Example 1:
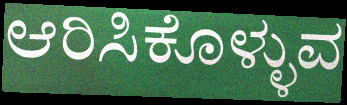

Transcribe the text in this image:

ಆರಿಸಿಕೊಳ್ಳುವ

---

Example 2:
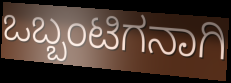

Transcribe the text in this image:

ಒಬ್ಬಂಟಿಗನಾಗಿ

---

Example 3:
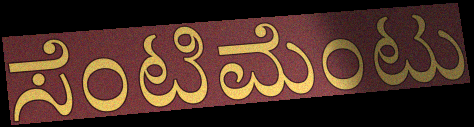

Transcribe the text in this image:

ಸೆಂಟಿಮೆಂಟು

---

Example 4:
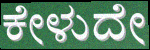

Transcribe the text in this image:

ಕೇಳುದೇ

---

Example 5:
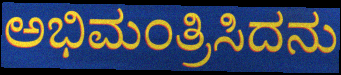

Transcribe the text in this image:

ಅಭಿಮಂತ್ರಿಸಿದನು